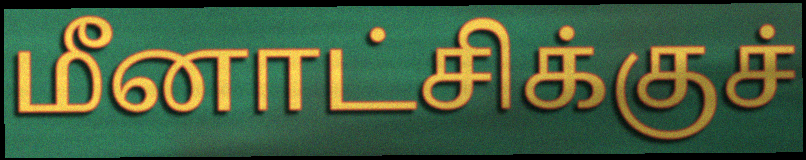
மீனாட்சிக்குச்